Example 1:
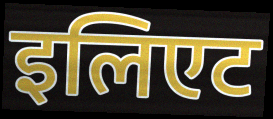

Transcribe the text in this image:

इलिएट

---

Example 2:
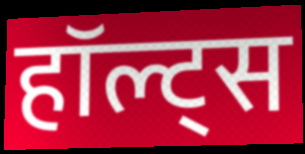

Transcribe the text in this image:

हॉल्ट्स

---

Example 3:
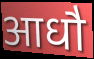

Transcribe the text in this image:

आधौ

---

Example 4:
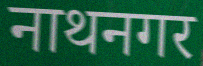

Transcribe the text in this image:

नाथनगर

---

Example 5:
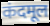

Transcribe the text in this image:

कंदमूल